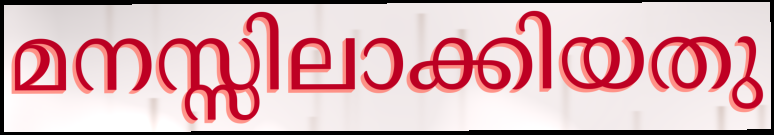
മനസ്സിലാക്കിയതു